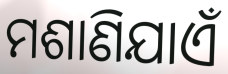
ମଶାଣିଯାଏଁ